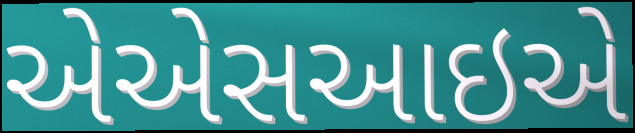
એએસઆઇએ